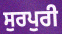
ਸੁਰਪੁਰੀ